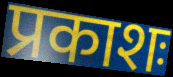
प्रकाशः